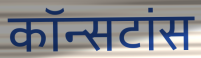
कॉन्सटांस